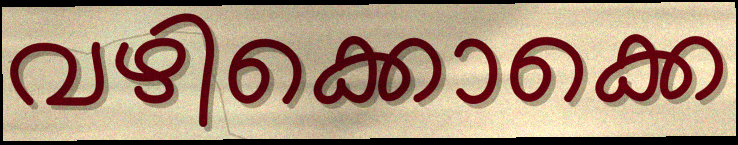
വഴിക്കൊക്കെ